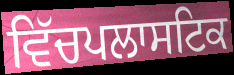
ਵਿੱਚਪਲਾਸਟਿਕ